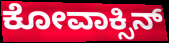
ಕೋವಾಕ್ಸಿನ್